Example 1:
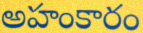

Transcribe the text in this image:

అహంకారం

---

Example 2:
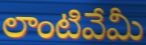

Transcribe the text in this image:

లాంటివేమీ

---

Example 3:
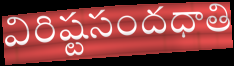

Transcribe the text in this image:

విరిష్టసందధాతి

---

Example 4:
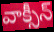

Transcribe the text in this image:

వాక్సీన్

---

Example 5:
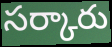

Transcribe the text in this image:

సర్కారు